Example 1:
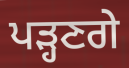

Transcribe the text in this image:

ਪੜ੍ਹਣਗੇ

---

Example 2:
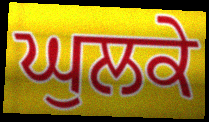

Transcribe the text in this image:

ਘੁਲਕੇ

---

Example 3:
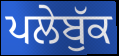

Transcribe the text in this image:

ਪਲੇਬੁੱਕ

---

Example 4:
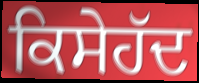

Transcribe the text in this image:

ਕਿਸੇਹੱਦ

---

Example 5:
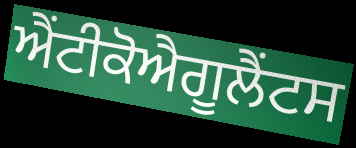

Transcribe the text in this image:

ਐਂਟੀਕੋਐਗੂਲੈਂਟਸ